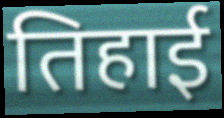
तिहाई